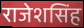
राजेशसिंह